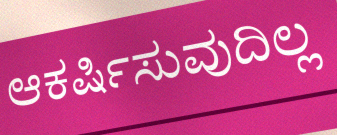
ಆಕರ್ಷಿಸುವುದಿಲ್ಲ